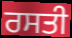
ਰਸਤੀ